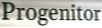
Progenitor